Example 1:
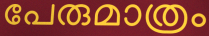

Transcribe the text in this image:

പേരുമാത്രം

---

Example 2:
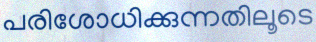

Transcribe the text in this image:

പരിശോധിക്കുന്നതിലൂടെ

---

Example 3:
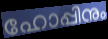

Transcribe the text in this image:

ഹോപ്പിനും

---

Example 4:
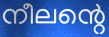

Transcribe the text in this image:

നീലന്റെ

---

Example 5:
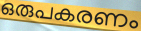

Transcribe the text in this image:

ഒരുപകരണം